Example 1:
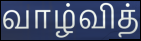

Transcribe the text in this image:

வாழ்வித்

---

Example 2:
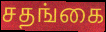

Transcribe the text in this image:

சதங்கை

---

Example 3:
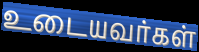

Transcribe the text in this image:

உடையவர்கள்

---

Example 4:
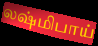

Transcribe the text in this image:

லஷ்மிபாய்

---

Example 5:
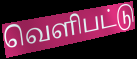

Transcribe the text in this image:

வெளிபட்டு